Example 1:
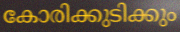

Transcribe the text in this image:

കോരിക്കുടിക്കും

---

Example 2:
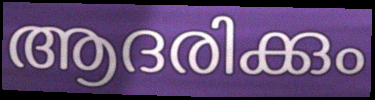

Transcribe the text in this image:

ആദരിക്കും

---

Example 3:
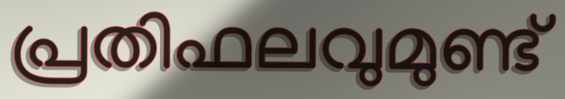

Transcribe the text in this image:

പ്രതിഫലവുമുണ്ട്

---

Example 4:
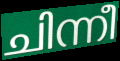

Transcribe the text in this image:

ചിന്നീ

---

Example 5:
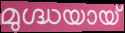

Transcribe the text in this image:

മുഗ്ദ്ധയായ്